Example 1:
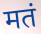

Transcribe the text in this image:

मतं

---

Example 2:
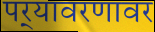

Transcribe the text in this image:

पर्यावरणावर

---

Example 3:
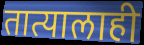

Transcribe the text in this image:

तात्यालाही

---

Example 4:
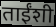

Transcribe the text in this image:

ताईंशी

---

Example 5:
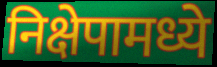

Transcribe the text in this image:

निक्षेपामध्ये